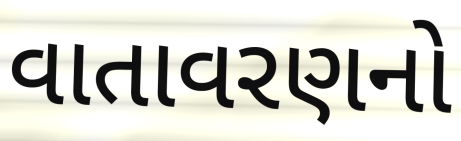
વાતાવરણનો